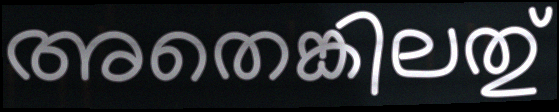
അതെങ്കിലതു്